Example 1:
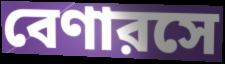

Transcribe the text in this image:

বেণারসে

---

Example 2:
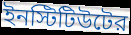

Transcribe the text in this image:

ইনস্টিটিউটের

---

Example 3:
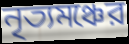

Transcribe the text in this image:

নৃত্যমঞ্চের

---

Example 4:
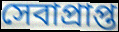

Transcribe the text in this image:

সেবাপ্রাপ্ত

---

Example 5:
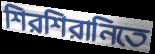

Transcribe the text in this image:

শিরশিরানিতে